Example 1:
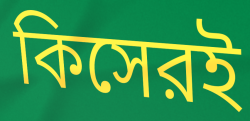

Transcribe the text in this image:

কিসেরই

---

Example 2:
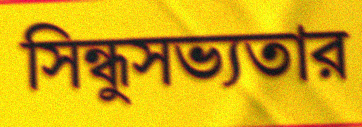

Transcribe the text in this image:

সিন্ধুসভ্যতার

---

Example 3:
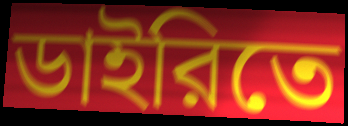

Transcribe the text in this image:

ডাইরিতে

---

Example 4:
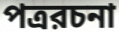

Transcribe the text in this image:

পত্ররচনা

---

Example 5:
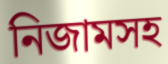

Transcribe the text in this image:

নিজামসহ